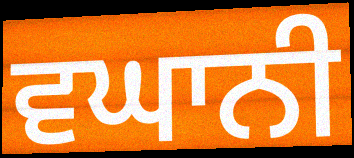
ਵਘਾਨੀ